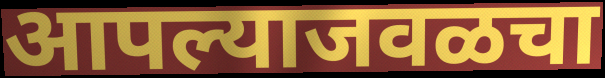
आपल्याजवळचा